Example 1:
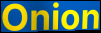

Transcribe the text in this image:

Onion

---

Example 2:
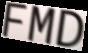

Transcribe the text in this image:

FMD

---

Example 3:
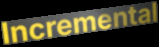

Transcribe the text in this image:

Incremental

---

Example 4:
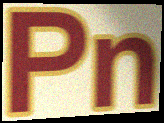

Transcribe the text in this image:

Pn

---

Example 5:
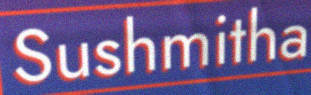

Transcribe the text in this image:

Sushmitha